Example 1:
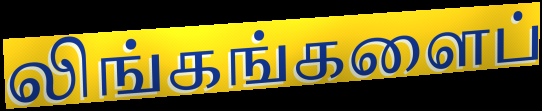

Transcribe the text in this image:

லிங்கங்களைப்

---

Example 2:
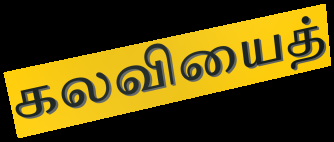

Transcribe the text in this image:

கலவியைத்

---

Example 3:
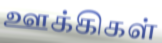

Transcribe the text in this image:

ஊக்கிகள்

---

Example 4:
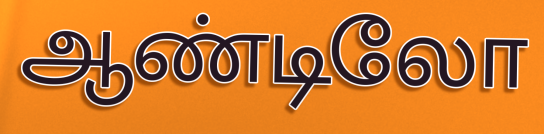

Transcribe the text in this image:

ஆண்டிலோ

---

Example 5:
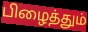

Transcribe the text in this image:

பிழைத்தும்